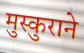
मुस्कुराने